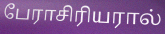
பேராசிரியரால்